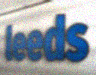
leeds